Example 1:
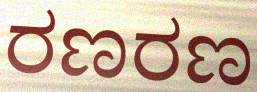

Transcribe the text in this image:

ರಣರಣ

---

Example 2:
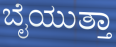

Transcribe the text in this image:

ಬೈಯುತ್ತಾ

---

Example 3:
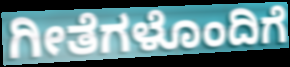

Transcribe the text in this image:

ಗೀತೆಗಳೊಂದಿಗೆ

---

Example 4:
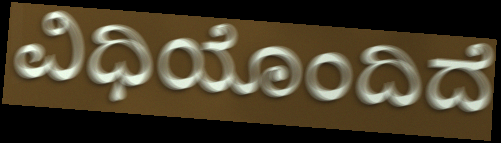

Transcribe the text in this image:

ವಿಧಿಯೊಂದಿದೆ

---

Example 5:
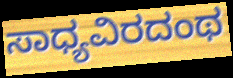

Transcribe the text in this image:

ಸಾಧ್ಯವಿರದಂಥ